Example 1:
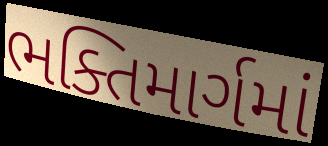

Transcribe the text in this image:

ભક્તિમાર્ગમાં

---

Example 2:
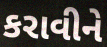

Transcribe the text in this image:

કરાવીને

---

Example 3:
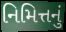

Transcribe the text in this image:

નિમિત્તનું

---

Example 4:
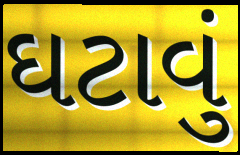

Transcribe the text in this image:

ઘટાવું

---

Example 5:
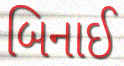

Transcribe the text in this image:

બિનાઈ